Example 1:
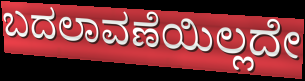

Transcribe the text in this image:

ಬದಲಾವಣೆಯಿಲ್ಲದೇ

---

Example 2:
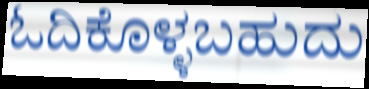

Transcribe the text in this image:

ಓದಿಕೊಳ್ಳಬಹುದು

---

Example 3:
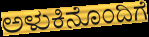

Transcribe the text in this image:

ಅಳುಕಿನೊಂದಿಗೆ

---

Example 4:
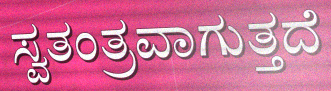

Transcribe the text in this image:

ಸ್ವತಂತ್ರವಾಗುತ್ತದೆ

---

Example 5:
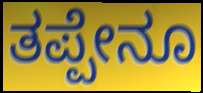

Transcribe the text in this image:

ತಪ್ಪೇನೂ